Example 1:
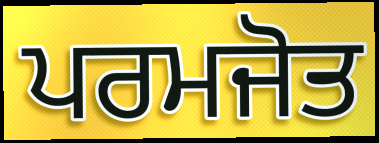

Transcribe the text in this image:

ਪਰਮਜੋਤ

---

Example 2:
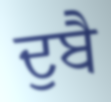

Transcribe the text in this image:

ਦੁਬੈ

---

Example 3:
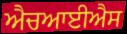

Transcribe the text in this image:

ਐਚਆਈਐਸ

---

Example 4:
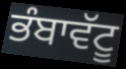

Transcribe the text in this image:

ਭੰਬਾਵੱਟੂ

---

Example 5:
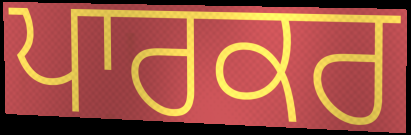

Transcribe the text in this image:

ਪਾਰਕਰ